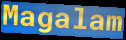
Magalam